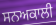
ਸਨਅਕਾਲੀ